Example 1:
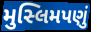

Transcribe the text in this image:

મુસ્લિમપણું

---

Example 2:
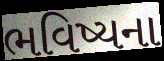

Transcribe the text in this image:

ભવિષ્યના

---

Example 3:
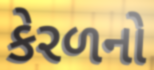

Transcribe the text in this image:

કેરળનો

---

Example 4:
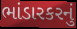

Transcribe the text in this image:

ભાંડારકરનું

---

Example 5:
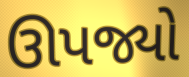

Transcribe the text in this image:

ઊપજ્યો